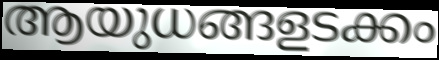
ആയുധങ്ങളടക്കം